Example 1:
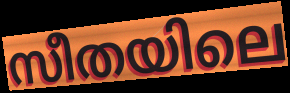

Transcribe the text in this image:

സീതയിലെ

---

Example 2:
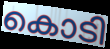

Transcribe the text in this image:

കൊടി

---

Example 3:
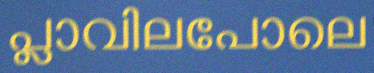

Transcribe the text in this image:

പ്ലാവിലപോലെ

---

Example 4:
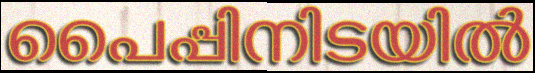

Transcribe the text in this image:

പൈപ്പിനിടയിൽ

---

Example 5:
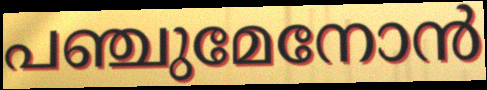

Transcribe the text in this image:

പഞ്ചുമേനോൻ